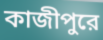
কাজীপুরে